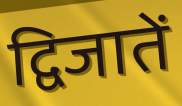
द्विजातें